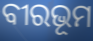
ବୀରଭୂମ